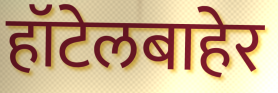
हॉटेलबाहेर